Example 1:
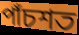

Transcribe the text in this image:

পাঁচশত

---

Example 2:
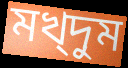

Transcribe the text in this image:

মখ্দুম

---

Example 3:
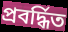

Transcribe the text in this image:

প্রবর্দ্ধিত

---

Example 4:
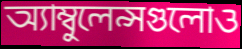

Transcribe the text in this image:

অ্যাম্বুলেন্সগুলোও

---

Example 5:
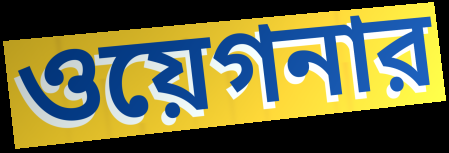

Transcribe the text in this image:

ওয়েগনার